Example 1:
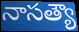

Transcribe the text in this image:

నాసత్యౌ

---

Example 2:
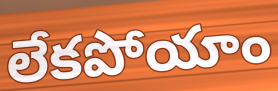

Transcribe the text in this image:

లేకపోయాం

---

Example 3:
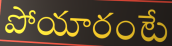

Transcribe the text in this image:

పోయారంటే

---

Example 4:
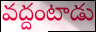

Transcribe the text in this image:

వద్దంటాడు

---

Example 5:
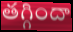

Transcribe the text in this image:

తగ్గిందా